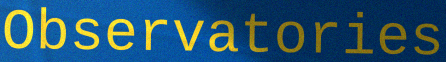
Observatories